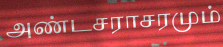
அண்டசராசரமும்